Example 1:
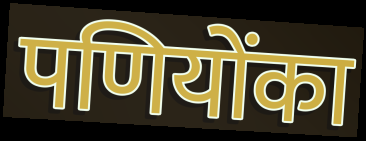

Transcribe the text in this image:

पणियोंका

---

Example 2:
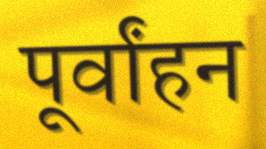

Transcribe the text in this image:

पूर्वांहन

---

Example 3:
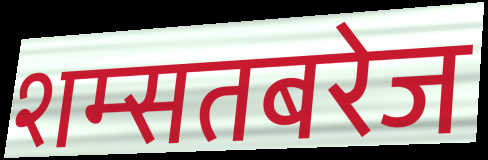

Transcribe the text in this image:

शम्सतबरेज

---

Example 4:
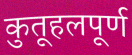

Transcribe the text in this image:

कुतूहलपूर्ण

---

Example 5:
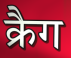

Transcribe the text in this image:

क्रैग